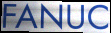
FANUC